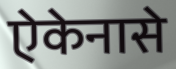
ऐकेनासे